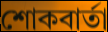
শোকবার্তা